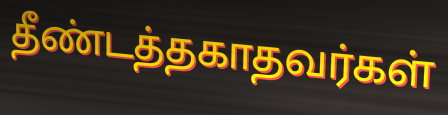
தீண்டத்தகாதவர்கள்